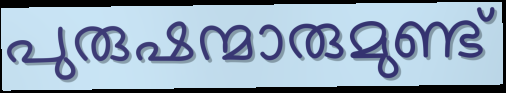
പുരുഷന്മാരുമുണ്ട്